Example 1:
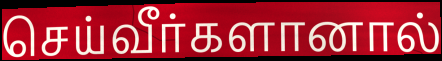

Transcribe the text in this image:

செய்வீர்களானால்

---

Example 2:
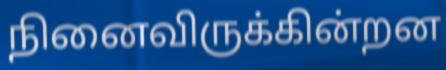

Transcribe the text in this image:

நினைவிருக்கின்றன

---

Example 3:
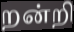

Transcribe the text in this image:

றன்றி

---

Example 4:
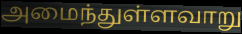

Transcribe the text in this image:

அமைந்துள்ளவாறு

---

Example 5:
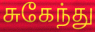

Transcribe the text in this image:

சுகேந்து